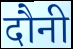
दौनी